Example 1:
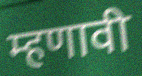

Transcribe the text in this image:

म्हणावी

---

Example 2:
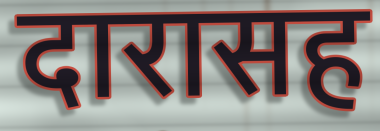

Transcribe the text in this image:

दारासह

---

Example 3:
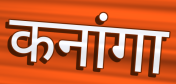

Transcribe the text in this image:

कनांगा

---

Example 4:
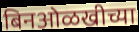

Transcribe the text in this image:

बिनओळखीच्या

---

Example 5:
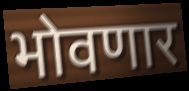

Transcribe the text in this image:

भोवणार